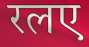
रलए